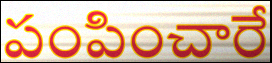
పంపించారే